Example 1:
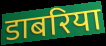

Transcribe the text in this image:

डाबरिया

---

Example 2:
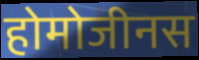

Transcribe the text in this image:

होमोजीनस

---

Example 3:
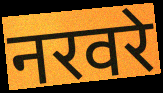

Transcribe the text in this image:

नरवरे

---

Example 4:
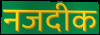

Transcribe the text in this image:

नजदीक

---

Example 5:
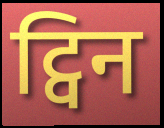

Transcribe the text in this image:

ट्विन